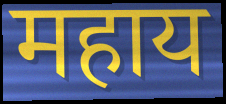
महाय